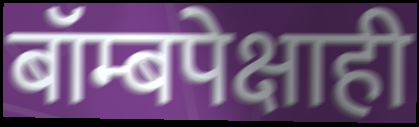
बॉम्बपेक्षाही